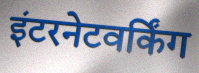
इंटरनेटवर्किंग